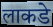
लाकडे